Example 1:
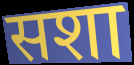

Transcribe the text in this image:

सशा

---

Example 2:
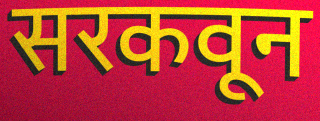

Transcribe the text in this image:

सरकवून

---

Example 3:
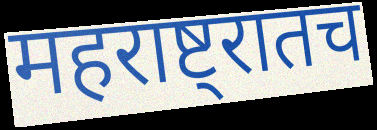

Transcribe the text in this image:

महराष्ट्रातच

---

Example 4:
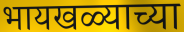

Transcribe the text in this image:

भायखळ्याच्या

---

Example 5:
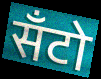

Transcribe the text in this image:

सँटो